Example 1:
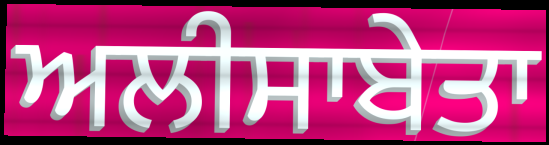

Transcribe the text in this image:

ਅਲੀਸਾਬੇਤਾ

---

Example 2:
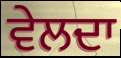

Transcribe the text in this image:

ਵੇਲਦਾ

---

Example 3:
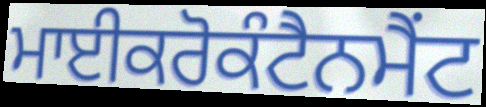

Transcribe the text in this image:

ਮਾਈਕਰੋਕੰਟੈਨਮੈਂਟ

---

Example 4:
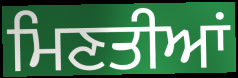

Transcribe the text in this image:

ਮਿਣਤੀਆਂ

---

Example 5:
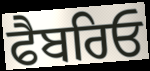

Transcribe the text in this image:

ਫੈਬਰਿਓ